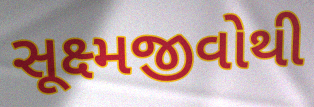
સૂક્ષ્મજીવોથી